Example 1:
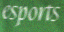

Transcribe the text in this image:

esports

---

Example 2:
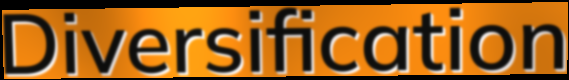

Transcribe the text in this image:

Diversification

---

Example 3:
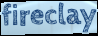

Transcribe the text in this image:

fireclay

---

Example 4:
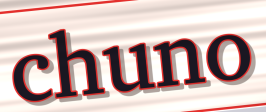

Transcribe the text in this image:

chuno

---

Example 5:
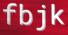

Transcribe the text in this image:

fbjk